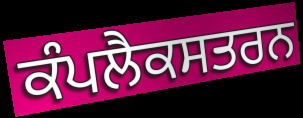
ਕੰਪਲੈਕਸਤਰਨ